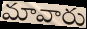
మావారు